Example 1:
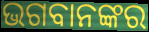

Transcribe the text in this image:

ଭଗବାନଙ୍କର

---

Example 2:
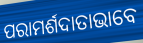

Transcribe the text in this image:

ପରାମର୍ଶଦାତାଭାବେ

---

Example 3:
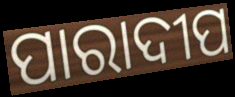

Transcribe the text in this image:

ପାରାଦୀପ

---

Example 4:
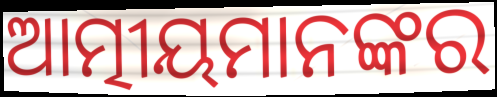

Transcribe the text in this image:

ଆତ୍ମୀୟମାନଙ୍କର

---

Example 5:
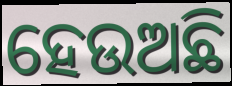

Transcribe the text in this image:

ହେଉଅଛି